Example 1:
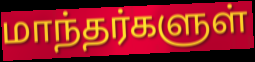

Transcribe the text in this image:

மாந்தர்களுள்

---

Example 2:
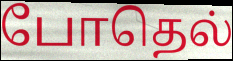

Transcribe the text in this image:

போதெல்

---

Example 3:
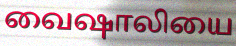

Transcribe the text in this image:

வைஷாலியை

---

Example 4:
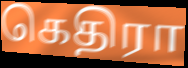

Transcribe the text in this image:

கெதிரா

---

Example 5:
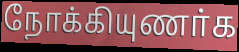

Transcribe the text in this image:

நோக்கியுணர்க